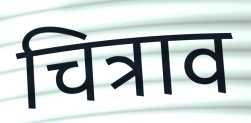
चित्राव